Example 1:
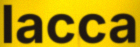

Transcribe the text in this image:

lacca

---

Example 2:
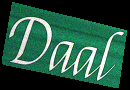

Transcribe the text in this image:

Daal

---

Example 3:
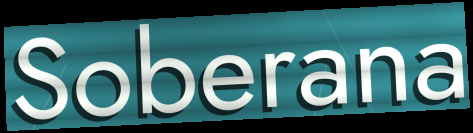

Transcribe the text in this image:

Soberana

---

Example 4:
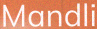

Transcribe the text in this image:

Mandli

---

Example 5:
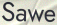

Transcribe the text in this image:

Sawe